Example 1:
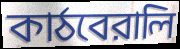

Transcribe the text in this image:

কাঠবেরালি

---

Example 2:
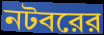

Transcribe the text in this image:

নটবরের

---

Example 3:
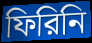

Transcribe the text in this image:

ফিরিনি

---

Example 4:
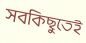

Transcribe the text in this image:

সবকিছুতেই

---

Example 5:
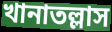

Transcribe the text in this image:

খানাতল্লাস